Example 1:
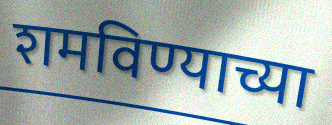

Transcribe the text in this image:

शमविण्याच्या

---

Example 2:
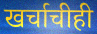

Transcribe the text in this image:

खर्चाचीही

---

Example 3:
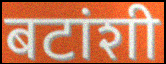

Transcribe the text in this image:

बटांशी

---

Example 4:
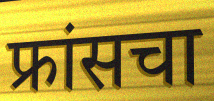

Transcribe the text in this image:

फ्रांसचा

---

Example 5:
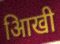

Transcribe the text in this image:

आिखी